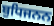
ਬੁਧਿਜਨਨ